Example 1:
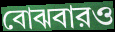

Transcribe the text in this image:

বোঝবারও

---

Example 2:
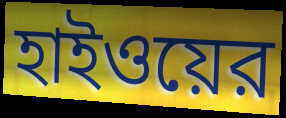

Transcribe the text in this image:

হাইওয়ের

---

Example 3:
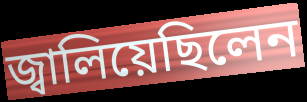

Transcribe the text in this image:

জ্বালিয়েছিলেন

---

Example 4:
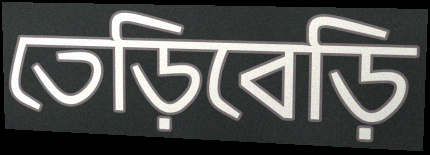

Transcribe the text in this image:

তেড়িবেড়ি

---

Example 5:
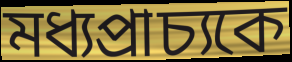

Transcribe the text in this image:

মধ্যপ্রাচ্যকে